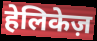
हेलिकेज़